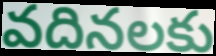
వదినలకు